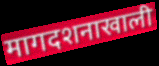
मागदशनाखाली